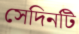
সেদিনটি